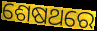
ଶେଷଥରେ